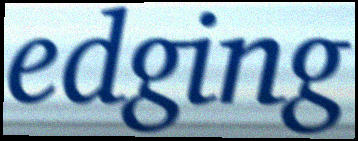
edging